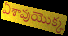
ఏశావుయొక్క